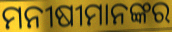
ମନୀଷୀମାନଙ୍କର